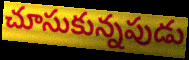
చూసుకున్నపుడు